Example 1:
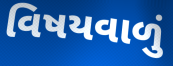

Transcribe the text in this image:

વિષયવાળું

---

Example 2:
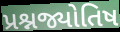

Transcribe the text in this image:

પ્રશ્નજ્યોતિષ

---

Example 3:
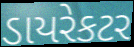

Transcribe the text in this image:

ડાયરેકટર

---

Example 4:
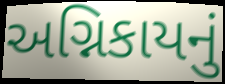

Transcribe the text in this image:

અગ્નિકાયનું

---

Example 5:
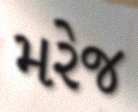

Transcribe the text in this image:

મરેજ